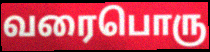
வரைபொரு